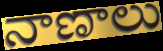
నాణాలు